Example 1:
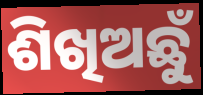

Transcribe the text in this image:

ଶିଖିଅଛୁଁ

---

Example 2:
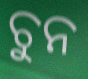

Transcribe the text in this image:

ଚୁନ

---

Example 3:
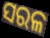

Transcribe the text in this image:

ସରଳ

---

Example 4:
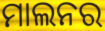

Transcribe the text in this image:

ମାଲନର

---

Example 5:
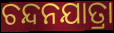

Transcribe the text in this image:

ଚନ୍ଦନଯାତ୍ରା